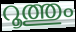
റൂത്തും